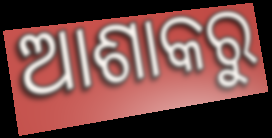
ଆଶାକରୁ